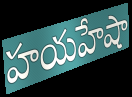
హయహేషా